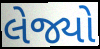
લેજ્યો